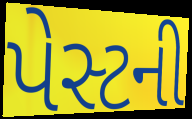
પેસ્ટની